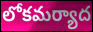
లోకమర్యాద